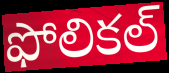
ఫోలికల్